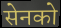
सेनको